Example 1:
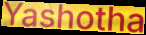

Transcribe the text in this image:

Yashotha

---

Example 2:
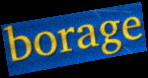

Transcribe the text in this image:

borage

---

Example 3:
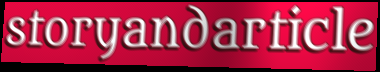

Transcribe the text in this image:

storyandarticle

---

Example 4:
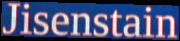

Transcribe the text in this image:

Jisenstain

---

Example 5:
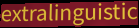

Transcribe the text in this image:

extralinguistic